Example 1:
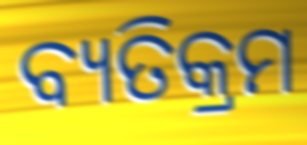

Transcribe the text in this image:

ବ୍ଯତିକ୍ରମ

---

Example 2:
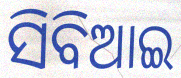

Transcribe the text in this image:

ସିବିଆଇ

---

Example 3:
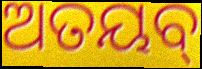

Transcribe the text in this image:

ଅତୟବ୍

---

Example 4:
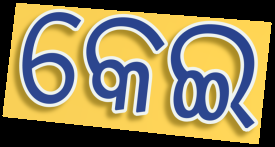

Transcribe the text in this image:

କେଇ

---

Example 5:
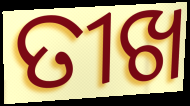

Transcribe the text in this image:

ତୀଖ